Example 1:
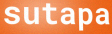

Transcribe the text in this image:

sutapa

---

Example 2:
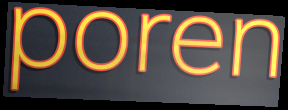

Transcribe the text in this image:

poren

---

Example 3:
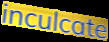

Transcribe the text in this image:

inculcate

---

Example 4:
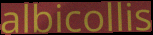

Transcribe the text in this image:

albicollis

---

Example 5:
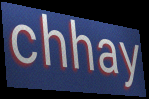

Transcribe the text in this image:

chhay